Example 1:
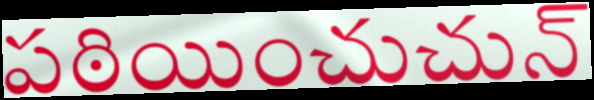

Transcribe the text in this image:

పఠియించుచున్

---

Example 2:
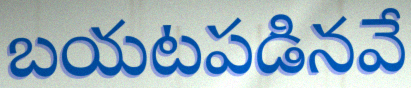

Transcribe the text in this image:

బయటపడినవే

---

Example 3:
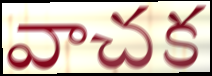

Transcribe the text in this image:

వాచక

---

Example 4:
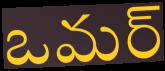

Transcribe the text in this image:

ఒమర్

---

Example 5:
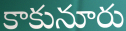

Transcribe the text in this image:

కాకునూరు